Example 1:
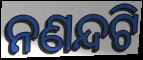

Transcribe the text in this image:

ନଣନ୍ଦଟି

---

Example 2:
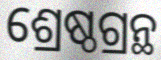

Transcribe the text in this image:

ଶ୍ରେଷ୍ଠଗ୍ରନ୍ଥ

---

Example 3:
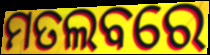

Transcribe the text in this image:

ମତଲବରେ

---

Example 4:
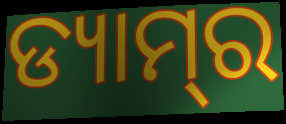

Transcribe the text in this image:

ଡ୍ୟାମ୍‍ର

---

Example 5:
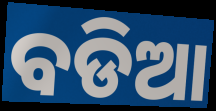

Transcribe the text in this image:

ବଡିଆ